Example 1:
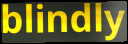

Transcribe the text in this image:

blindly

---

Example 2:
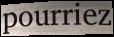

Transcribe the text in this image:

pourriez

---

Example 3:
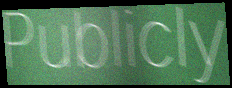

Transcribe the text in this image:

Publicly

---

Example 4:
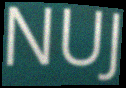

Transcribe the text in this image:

NUJ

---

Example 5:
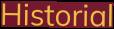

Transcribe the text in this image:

Historial